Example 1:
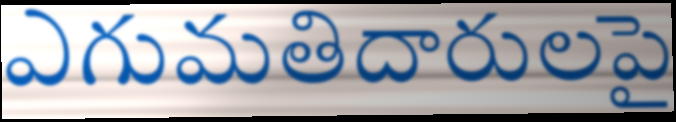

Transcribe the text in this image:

ఎగుమతిదారులపై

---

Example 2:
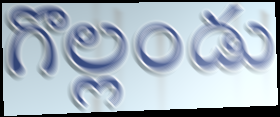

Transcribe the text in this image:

గొల్లండు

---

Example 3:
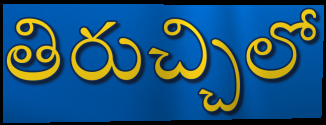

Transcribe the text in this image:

తిరుచ్చిలో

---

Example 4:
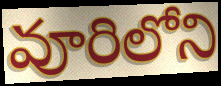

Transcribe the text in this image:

వూరిలోని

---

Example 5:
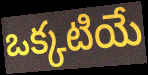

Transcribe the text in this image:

ఒక్కటియే